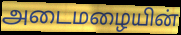
அடைமழையின்